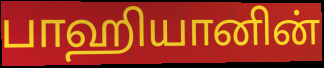
பாஹியானின்